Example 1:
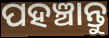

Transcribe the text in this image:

ପହଞ୍ଚାନ୍ତୁ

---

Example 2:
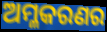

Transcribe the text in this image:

ଅମ୍ଳକରଣର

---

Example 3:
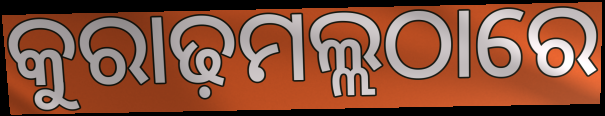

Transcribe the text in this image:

କୁରାଢ଼ମଲ୍ଲଠାରେ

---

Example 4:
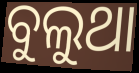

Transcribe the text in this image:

ବୁଲୁଥା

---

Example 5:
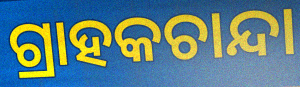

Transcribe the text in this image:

ଗ୍ରାହକଚାନ୍ଦା